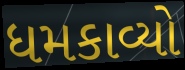
ધમકાવ્યો